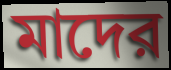
মাদের